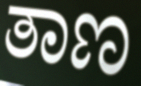
ತಾಣ